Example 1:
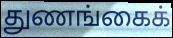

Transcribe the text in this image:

துணங்கைக்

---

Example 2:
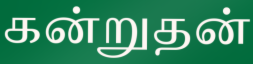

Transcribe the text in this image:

கன்றுதன்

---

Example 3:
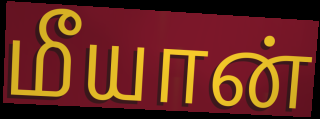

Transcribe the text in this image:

மீயான்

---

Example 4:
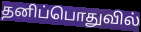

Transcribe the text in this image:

தனிப்பொதுவில்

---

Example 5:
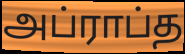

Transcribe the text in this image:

அப்ராப்த